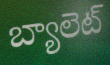
బ్యాలెట్